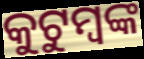
କୁଟୁମ୍ବଙ୍କ